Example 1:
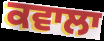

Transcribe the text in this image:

ਕਵਾਲਾ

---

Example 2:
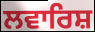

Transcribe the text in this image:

ਲਵਾਰਿਸ਼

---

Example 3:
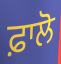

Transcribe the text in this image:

ਫ਼ਾਲੋ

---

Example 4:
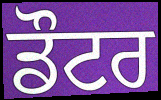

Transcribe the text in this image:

ਡੌਟਰ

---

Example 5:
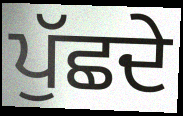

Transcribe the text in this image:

ਪੁੱਛਦੇ